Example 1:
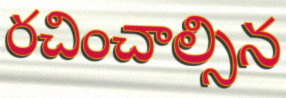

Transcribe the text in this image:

రచించాల్సిన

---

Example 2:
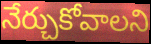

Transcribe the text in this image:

నేర్చుకోవాలని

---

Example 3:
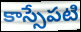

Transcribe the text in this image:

కాస్సేపటి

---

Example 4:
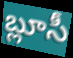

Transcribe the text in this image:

బ్లూసీ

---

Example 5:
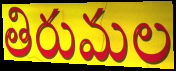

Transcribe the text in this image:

తిరుమల